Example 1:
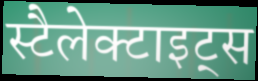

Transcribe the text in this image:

स्टैलेक्टाइट्स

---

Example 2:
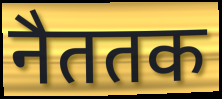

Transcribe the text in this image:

नैततक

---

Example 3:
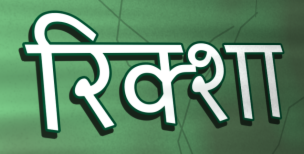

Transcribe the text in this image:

रिक्‍शा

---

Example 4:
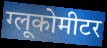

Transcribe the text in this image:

ग्लूकोमीटर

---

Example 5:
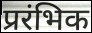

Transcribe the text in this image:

प्ररंभिक